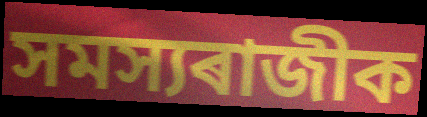
সমস্যৰাজীক